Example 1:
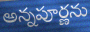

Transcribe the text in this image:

అన్నపూర్ణను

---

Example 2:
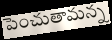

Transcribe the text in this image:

పెంచుతామన్న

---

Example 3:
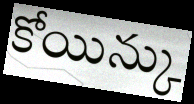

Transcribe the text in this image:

కోయిన్కు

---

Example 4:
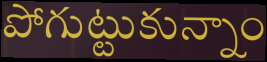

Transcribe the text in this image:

పోగుట్టుకున్నాం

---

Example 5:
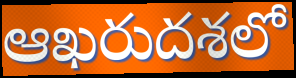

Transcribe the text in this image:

ఆఖరుదశలో